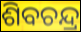
ଶିବଚନ୍ଦ୍ର